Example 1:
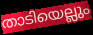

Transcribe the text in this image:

താടിയെല്ലും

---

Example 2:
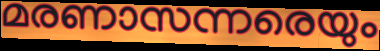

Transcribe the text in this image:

മരണാസന്നരെയും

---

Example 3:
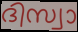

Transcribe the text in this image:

ദിസ്വാ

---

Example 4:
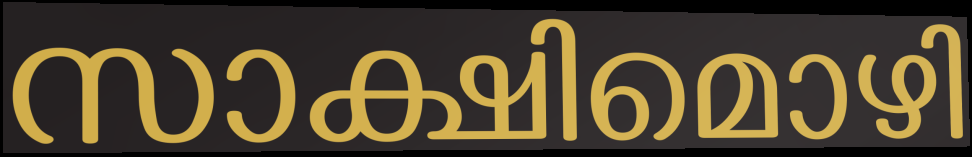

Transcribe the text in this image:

സാക്ഷിമൊഴി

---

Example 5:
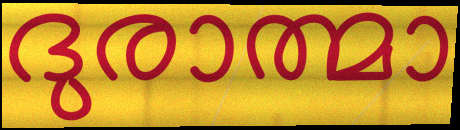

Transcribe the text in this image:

ദുരാത്മാ